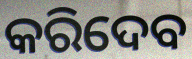
କରିଦେବ